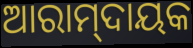
ଆରାମ୍‌ଦାୟକ